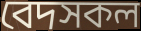
বেদসকল